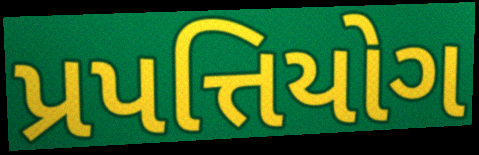
પ્રપત્તિયોગ